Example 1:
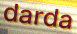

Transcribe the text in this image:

darda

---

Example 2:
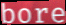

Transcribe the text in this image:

bore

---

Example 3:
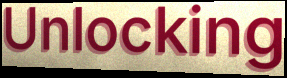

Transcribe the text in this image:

Unlocking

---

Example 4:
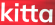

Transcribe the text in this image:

kitta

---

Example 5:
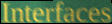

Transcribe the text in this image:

Interfaces